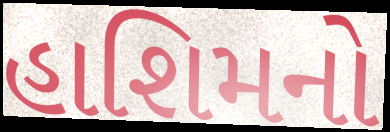
હાશિમનો